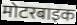
मोटरबाइक